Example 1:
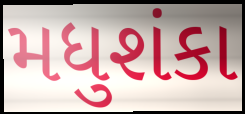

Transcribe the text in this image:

મધુશંકા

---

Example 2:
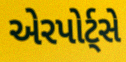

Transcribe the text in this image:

એરપોર્ટ્સે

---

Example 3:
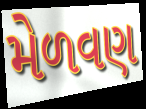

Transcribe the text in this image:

મેળવણ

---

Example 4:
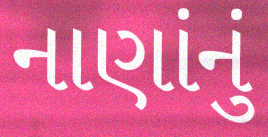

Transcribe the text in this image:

નાણાંનું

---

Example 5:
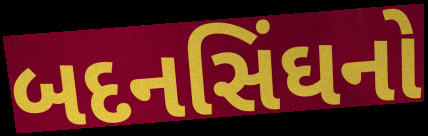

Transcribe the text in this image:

બદનસિંઘનો